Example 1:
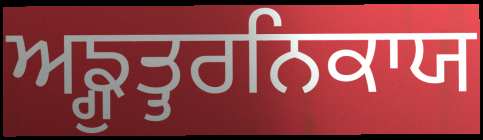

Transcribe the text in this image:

ਅਙ੍ਗੁਤ੍ਤਰਨਿਕਾਯ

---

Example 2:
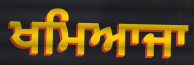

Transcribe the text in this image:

ਖਮਿਆਜਾ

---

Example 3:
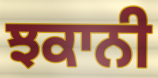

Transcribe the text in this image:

ਝਕਾਨੀ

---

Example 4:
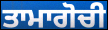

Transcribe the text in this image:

ਤਾਮਾਗੋਚੀ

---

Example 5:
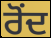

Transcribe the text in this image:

ਰੋਂਦ